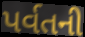
પર્વતની